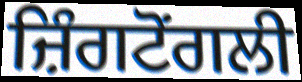
ਜ਼ਿੰਗਟੋਂਗਲੀ